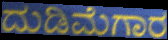
ದುಡಿಮೆಗಾರ